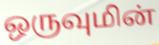
ஒருவுமின்